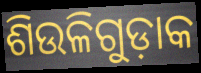
ଶିଉଳିଗୁଡ଼ାକ